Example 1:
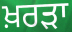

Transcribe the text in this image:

ਖ਼ਰੜਾ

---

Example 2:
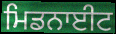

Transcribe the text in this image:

ਮਿਡਨਾਈਟ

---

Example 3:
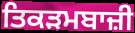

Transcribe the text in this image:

ਤਿਕੜਮਬਾਜ਼ੀ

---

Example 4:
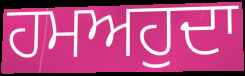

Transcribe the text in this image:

ਹਮਅਹੁਦਾ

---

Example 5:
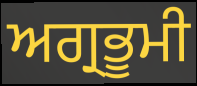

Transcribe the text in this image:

ਅਗ੍ਰਭੂਮੀ